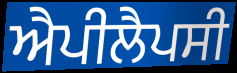
ਐਪੀਲੈਪਸੀ